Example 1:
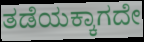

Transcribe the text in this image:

ತಡೆಯಕ್ಕಾಗದೇ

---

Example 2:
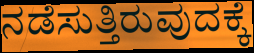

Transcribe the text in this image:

ನಡೆಸುತ್ತಿರುವುದಕ್ಕೆ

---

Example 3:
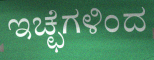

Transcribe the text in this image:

ಇಚ್ಛೆಗಳಿಂದ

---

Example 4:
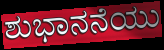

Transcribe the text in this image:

ಶುಭಾನನೆಯು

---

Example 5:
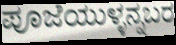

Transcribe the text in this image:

ಪೂಜೆಯುಳ್ಳನ್ನಬರ